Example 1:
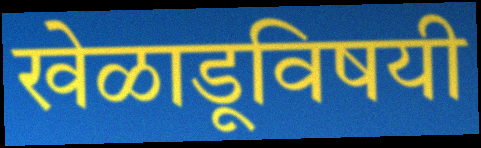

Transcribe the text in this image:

खेळाडूविषयी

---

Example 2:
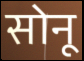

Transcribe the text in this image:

सोनू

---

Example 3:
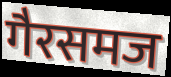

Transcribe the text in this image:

गैरसमज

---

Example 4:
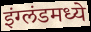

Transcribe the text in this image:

इंग्लंडमध्ये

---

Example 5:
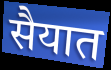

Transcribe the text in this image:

सैयात